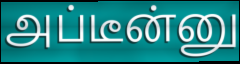
அப்டீன்னு